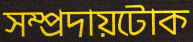
সম্প্ৰদায়টোক